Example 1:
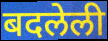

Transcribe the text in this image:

बदलेली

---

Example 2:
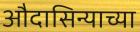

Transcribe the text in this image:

औदासिन्याच्या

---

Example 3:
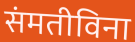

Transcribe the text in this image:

संमतीविना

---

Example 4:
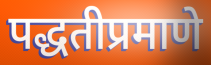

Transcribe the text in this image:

पद्धतीप्रमाणे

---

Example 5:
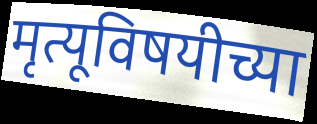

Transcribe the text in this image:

मृत्यूविषयीच्या